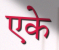
एके